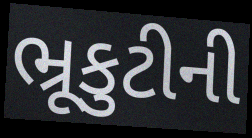
ભ્રૂકુટીની